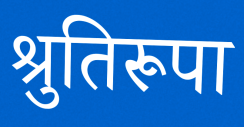
श्रुतिरूपा